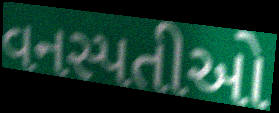
વનસ્પતીઓ